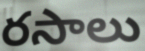
రసాలు